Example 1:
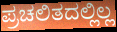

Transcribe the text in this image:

ಪ್ರಚಲಿತದಲ್ಲಿಲ್ಲ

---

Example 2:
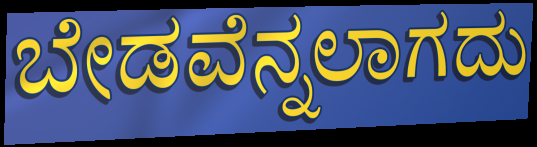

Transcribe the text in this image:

ಬೇಡವೆನ್ನಲಾಗದು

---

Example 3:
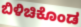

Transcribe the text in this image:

ಬಿಳಿಚಿಕೊಂಡ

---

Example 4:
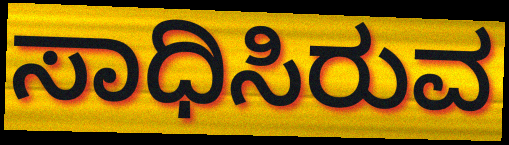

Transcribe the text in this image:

ಸಾಧಿಸಿರುವ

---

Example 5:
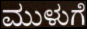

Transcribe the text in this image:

ಮುಳುಗೆ